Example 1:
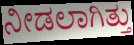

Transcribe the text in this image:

ನೀಡಲಾಗಿತ್ತು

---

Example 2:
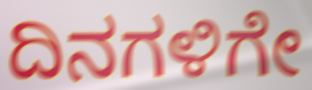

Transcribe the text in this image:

ದಿನಗಳಿಗೇ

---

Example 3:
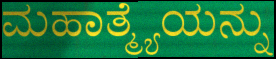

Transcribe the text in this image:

ಮಹಾತ್ಮ್ಯೆಯನ್ನು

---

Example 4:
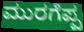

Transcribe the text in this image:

ಮುರಗೆಪ್ಪ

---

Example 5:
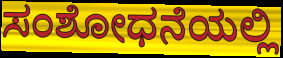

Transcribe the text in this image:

ಸಂಶೋಧನೆಯಲ್ಲಿ